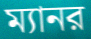
ম্যানর